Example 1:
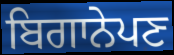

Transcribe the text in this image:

ਬਿਗਾਨੇਪਣ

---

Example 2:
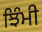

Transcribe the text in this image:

ਝਿੰਮੀ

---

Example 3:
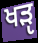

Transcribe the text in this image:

ਖੜੵ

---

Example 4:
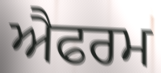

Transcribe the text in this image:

ਐਫਰਮ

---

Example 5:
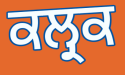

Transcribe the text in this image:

ਕਲ੍ਰਕ